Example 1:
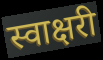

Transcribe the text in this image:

स्वाक्षरी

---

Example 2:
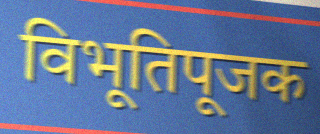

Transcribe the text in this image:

विभूतिपूजक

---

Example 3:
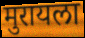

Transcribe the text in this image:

मुरायला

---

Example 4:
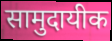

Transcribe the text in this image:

सामुदायीक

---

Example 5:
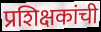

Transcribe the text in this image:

प्रशिक्षकांची